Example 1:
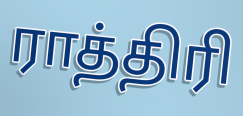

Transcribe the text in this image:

ராத்திரி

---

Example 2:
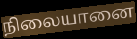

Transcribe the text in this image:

நிலையானை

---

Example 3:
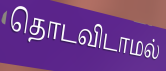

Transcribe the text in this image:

தொடவிடாமல்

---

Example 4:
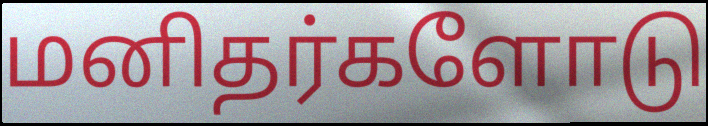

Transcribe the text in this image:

மனிதர்களோடு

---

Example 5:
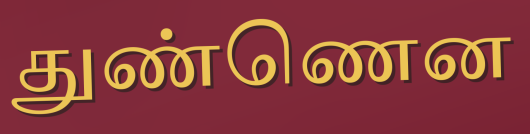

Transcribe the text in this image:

துண்ணென